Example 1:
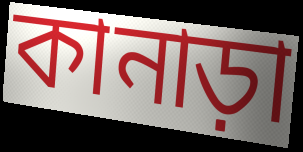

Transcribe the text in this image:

কানাড়া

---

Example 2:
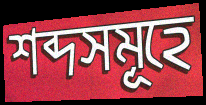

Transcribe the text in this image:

শব্দসমূহে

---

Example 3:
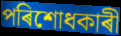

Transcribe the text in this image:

পৰিশোধকাৰী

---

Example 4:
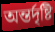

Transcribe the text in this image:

অন্তৰ্দৃষ্টি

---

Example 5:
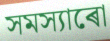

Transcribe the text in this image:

সমস্যাৰো